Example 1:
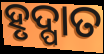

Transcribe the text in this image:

ହୃଦ୍ପାତ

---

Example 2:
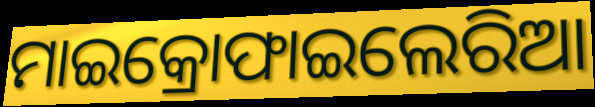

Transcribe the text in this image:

ମାଇକ୍ରୋଫାଇଲେରିଆ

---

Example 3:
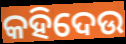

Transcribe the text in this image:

କହିଦେଉ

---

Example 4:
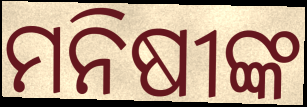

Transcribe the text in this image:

ମନିଷୀଙ୍କ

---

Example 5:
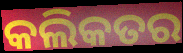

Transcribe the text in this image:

କଲିକତର